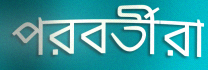
পরবর্তীরা